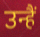
उन्‍हैं